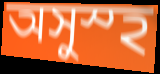
অসুস্হ